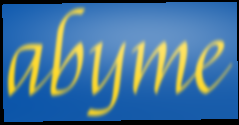
abyme